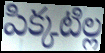
పిక్కటిల్ల